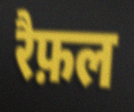
रैफ़ल